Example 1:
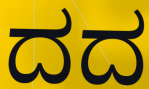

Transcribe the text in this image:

ದದ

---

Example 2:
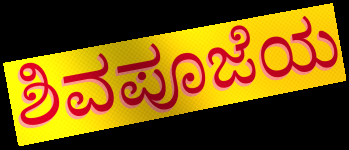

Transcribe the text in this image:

ಶಿವಪೂಜೆಯ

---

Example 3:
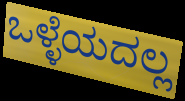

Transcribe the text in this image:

ಒಳ್ಳೆಯದಲ್ಲ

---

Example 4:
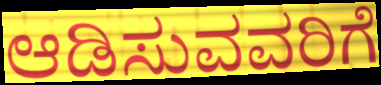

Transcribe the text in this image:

ಆಡಿಸುವವರಿಗೆ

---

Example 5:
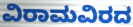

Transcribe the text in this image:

ವಿರಾಮವಿರದ